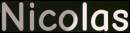
Nicolas